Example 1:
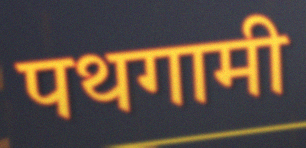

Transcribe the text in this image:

पथगामी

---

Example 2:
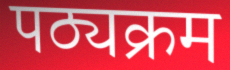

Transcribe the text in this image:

पठ्यक्रम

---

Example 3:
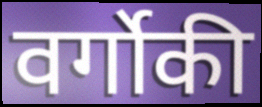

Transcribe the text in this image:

वर्गोकी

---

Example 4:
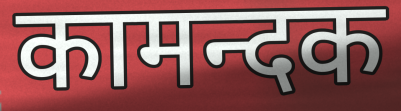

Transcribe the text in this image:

कामन्दक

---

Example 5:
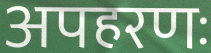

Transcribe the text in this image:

अपहरणः